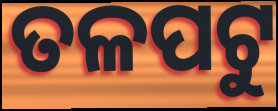
ତଳପଟୁ